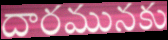
దారమునకు